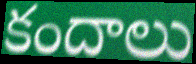
కందాలు